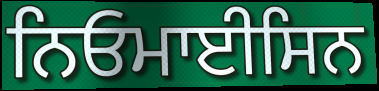
ਨਿਓਮਾਈਸਿਨ